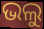
ଭଲୁ